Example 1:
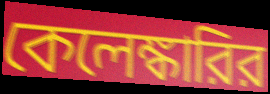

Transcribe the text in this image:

কেলেঙ্কারির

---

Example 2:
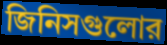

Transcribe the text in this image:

জিনিসগুলোর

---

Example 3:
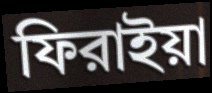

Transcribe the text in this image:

ফিরাইয়া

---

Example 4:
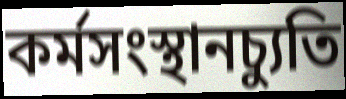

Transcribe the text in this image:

কর্মসংস্থানচ্যুতি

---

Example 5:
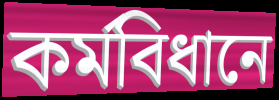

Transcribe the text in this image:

কর্মবিধানে